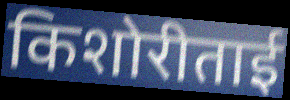
किशोरीताई